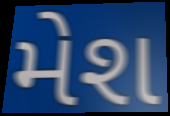
મેશ